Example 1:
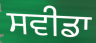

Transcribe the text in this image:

ਸਵੀਡਾ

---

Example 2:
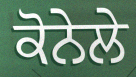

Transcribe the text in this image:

ਕੋਨੇਲੇ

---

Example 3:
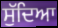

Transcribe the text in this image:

ਸੁੱਦਿਆ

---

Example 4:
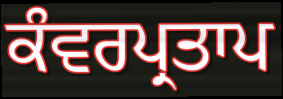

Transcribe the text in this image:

ਕੰਵਰਪ੍ਰਤਾਪ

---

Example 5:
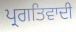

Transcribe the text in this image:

ਪ੍ਰਗਤਿਵਾਦੀ